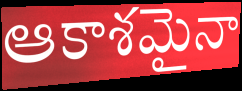
ఆకాశమైనా